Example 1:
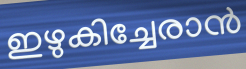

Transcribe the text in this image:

ഇഴുകിച്ചേരാൻ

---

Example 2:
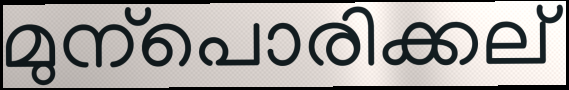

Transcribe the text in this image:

മുന്പൊരിക്കല്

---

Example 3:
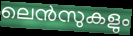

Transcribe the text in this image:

ലെൻസുകളും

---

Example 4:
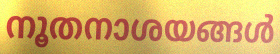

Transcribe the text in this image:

നൂതനാശയങ്ങൾ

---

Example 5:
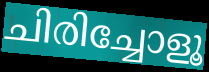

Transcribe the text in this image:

ചിരിച്ചോളൂ